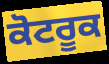
ਕੋਟਰੂਕ